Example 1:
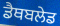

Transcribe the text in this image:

ਡੈਥਬਲੇਡ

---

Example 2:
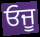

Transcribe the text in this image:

ਓਜੂ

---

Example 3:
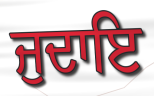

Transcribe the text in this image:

ਜੁਦਾਇ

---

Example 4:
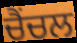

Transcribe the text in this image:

ਚੈਂਚਲ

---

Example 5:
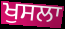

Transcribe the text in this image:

ਖੁਸਲਾ